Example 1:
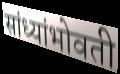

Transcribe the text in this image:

सांध्यांभोवती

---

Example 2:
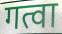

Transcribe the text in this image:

गत्वा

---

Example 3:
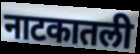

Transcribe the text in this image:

नाटकातली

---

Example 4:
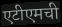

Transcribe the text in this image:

एटीएमची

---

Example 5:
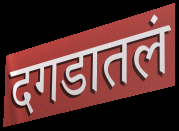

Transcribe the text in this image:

दगडातलं